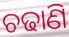
ଚଢାଣି